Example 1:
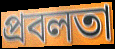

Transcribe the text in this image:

প্ৰবলতা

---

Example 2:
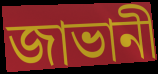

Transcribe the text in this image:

জাভানী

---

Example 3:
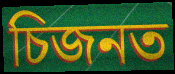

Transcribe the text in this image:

চিজনত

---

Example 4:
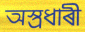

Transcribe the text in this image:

অস্ত্ৰধাৰী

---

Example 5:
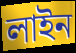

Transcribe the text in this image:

লাইন